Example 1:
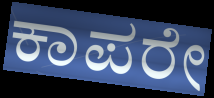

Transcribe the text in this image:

ಕಾಪರೇ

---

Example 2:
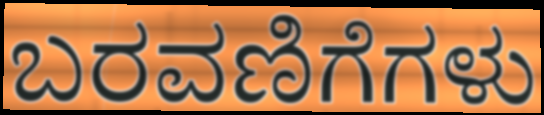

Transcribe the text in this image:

ಬರವಣಿಗೆಗಳು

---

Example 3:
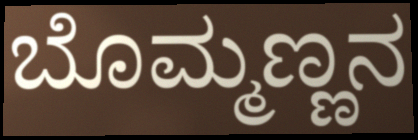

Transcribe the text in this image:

ಬೊಮ್ಮಣ್ಣನ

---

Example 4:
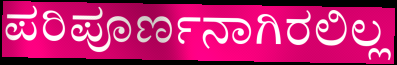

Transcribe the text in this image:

ಪರಿಪೂರ್ಣನಾಗಿರಲಿಲ್ಲ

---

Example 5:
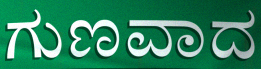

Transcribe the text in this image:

ಗುಣವಾದ